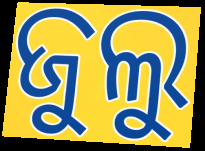
ଜୁଲୁ